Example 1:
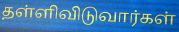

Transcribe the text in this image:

தள்ளிவிடுவார்கள்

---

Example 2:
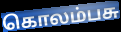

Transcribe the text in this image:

கொலம்பசு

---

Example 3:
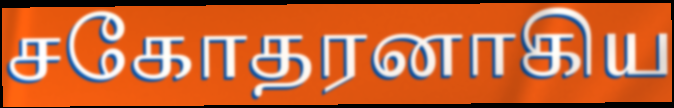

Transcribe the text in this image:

சகோதரனாகிய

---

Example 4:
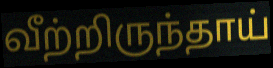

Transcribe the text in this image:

வீற்றிருந்தாய்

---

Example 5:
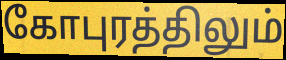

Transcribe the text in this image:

கோபுரத்திலும்